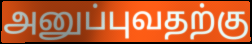
அனுப்புவதற்கு